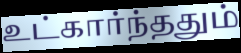
உட்கார்ந்ததும்